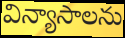
విన్యాసాలను